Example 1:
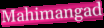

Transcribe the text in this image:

Mahimangad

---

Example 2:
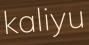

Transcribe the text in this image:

kaliyu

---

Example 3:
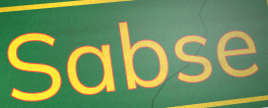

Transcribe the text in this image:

Sabse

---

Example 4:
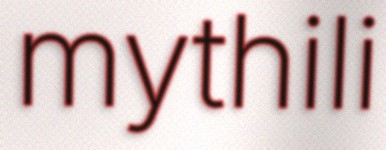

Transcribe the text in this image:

mythili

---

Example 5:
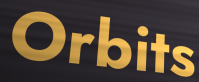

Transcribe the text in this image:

Orbits